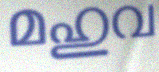
മഹുവ